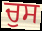
ਚੁਸ